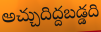
అచ్చుదిద్దబడ్డది